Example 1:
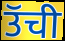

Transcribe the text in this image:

उॅची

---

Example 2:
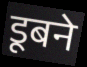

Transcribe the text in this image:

डूबने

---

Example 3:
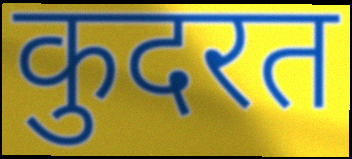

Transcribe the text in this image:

कुदरत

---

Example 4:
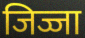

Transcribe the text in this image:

जिज्जा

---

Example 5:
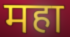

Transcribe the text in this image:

महा